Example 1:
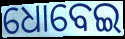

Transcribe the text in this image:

ଧୋବେଇ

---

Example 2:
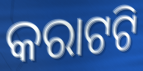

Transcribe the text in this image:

କରାଟଟି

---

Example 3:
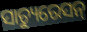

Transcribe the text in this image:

ସାଚ୍ୟୁରେସନ୍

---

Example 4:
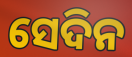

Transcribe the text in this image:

ସେଦିନ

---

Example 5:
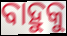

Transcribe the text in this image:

ବାହୁକୁ